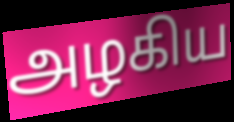
அழகிய